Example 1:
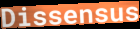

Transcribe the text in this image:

Dissensus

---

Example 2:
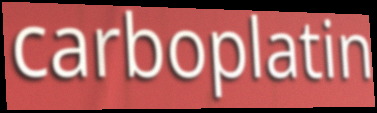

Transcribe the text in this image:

carboplatin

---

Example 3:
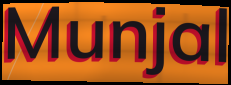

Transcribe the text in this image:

Munjal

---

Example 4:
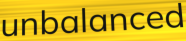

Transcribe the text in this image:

unbalanced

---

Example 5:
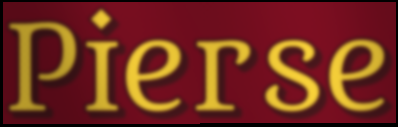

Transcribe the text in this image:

Pierse